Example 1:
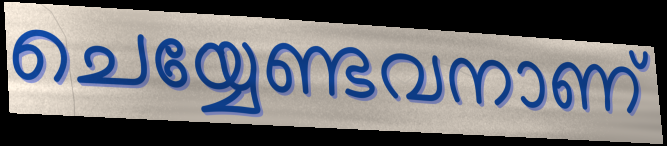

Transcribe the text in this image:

ചെയ്യേണ്ടവനാണ്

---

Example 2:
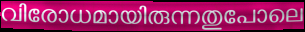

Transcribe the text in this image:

വിരോധമായിരുന്നതുപോലെ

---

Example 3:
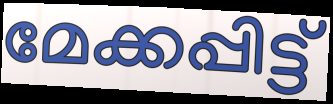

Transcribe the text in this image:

മേക്കപ്പിട്ട്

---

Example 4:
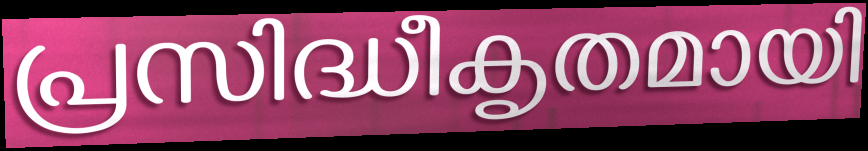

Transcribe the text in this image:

പ്രസിദ്ധീകൃതമായി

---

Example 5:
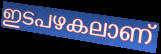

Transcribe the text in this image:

ഇടപഴകലാണ്